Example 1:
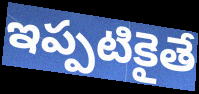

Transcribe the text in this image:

ఇప్పటికైతే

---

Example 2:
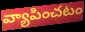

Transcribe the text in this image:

వ్యాపించటం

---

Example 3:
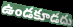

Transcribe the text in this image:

ఉండకూడదు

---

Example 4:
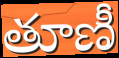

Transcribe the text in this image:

తూణీ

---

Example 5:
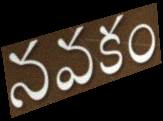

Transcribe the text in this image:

నవకం